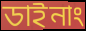
ডাইনাং